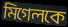
মিগেলকে